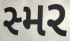
સ્મર